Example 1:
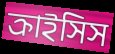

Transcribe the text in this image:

ক্রাইসিস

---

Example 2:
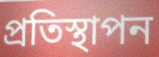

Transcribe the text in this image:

প্রতিস্থাপন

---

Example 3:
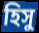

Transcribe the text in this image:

হিসু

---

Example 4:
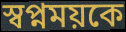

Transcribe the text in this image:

স্বপ্নময়কে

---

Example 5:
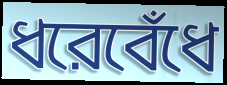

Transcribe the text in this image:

ধরেবেঁধে